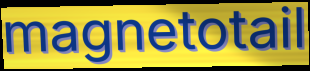
magnetotail